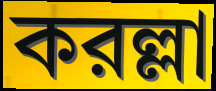
করল্লা